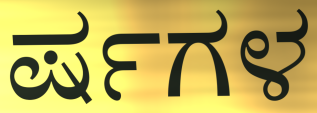
ರ್ಷಗಳ